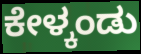
ಕೇಳ್ಕಂಡು